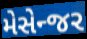
મેસેન્જર